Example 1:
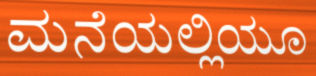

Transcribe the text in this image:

ಮನೆಯಲ್ಲಿಯೂ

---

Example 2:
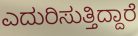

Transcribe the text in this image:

ಎದುರಿಸುತ್ತಿದ್ದಾರೆ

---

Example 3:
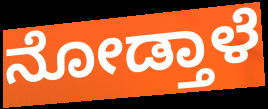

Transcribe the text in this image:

ನೋಡ್ತಾಳೆ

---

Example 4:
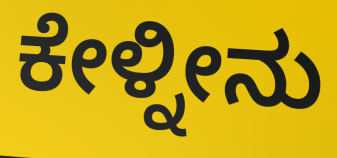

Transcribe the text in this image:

ಕೇಳ್ನೀನು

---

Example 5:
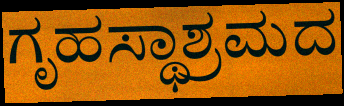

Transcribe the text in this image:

ಗೃಹಸ್ಥಾಶ್ರಮದ